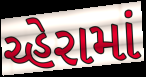
ચ્હેરામાં